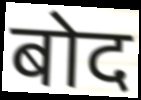
बोद